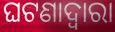
ଘଟଣାଦ୍ୱାରା